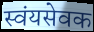
स्वंयसेवक